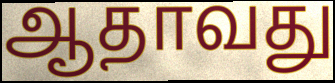
ஆதாவது